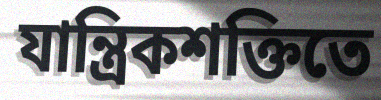
যান্ত্রিকশক্তিতে